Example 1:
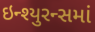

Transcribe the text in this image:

ઇન્શ્યુરન્સમાં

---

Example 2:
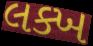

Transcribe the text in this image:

લક્ખ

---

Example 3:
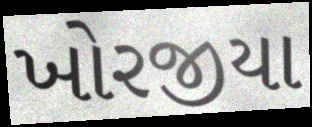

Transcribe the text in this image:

ખોરજીયા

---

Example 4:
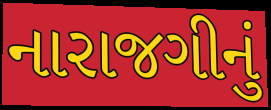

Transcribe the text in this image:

નારાજગીનું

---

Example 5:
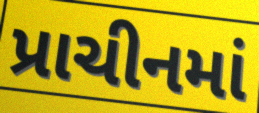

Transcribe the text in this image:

પ્રાચીનમાં